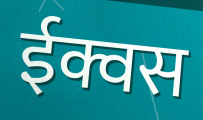
ईक्‍वस